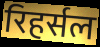
रिहर्सल